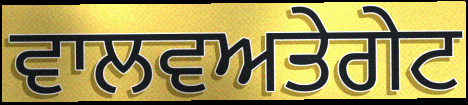
ਵਾਲਵਅਤੇਗੇਟ